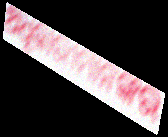
ଅଧିକାରୀମାନଙ୍କର